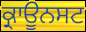
ਕ੍ਰਾਊਨਸਟ